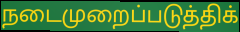
நடைமுறைப்படுத்திக்